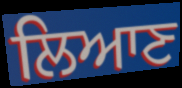
ਲਿਆਣ